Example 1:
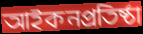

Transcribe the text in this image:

আইকনপ্রতিষ্ঠা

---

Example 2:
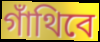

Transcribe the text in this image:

গাঁথিবে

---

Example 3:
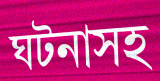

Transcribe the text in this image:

ঘটনাসহ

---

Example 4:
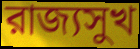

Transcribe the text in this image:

রাজ্যসুখ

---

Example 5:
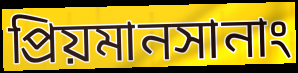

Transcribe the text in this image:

প্রিয়মানসানাং